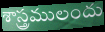
శాస్త్రములందు